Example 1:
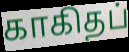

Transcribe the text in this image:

காகிதப்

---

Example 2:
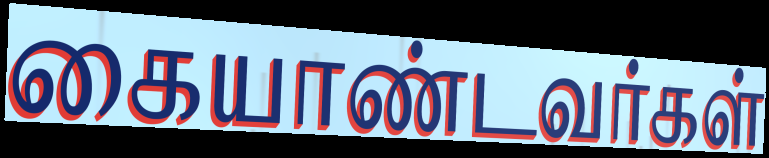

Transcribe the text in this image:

கையாண்டவர்கள்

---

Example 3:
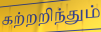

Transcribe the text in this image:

கற்றறிந்தும்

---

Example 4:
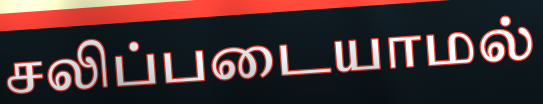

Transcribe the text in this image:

சலிப்படையாமல்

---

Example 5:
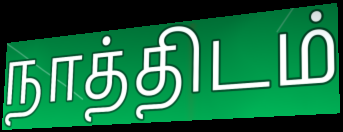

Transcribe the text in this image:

நாத்திடம்